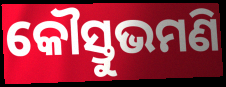
କୌସ୍ତୁଭମଣି